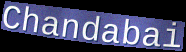
Chandabai